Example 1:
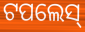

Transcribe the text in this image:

ଟପଲେସ୍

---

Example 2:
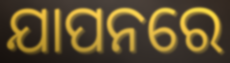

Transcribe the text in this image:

ଯାପନରେ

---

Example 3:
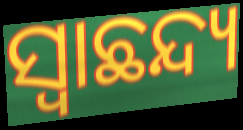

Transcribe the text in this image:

ସ୍ୱାଛନ୍ଦ୍ୟ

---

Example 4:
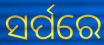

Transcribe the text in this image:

ସର୍ପରେ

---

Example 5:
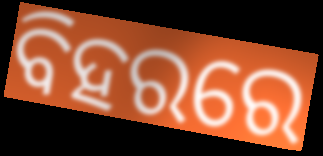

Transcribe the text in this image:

ବିହରରେ